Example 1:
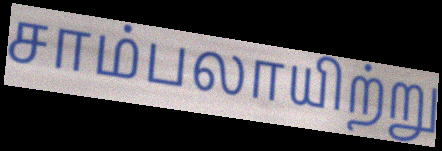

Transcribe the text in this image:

சாம்பலாயிற்று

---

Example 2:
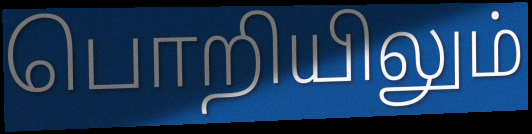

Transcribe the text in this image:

பொறியிலும்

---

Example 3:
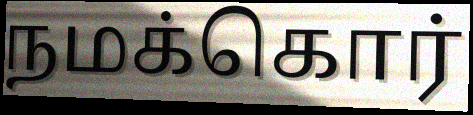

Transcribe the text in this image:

நமக்கொர்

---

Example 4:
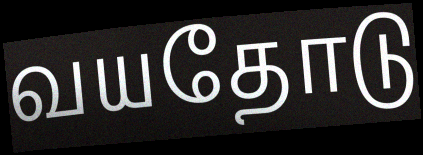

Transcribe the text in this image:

வயதோடு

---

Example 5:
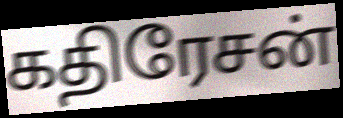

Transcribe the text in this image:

கதிரேசன்